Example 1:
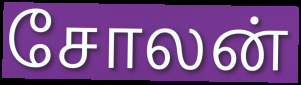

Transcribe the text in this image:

சோலன்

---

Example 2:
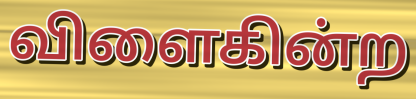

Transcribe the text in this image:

விளைகின்ற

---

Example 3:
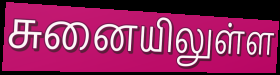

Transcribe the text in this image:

சுனையிலுள்ள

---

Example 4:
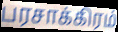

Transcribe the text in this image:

பரசாக்கிரம்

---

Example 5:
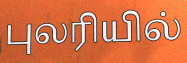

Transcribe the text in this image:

புலரியில்